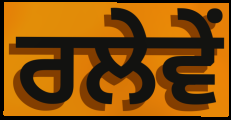
ਰਲੇਵੇਂ